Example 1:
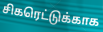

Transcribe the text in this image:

சிகரெட்டுக்காக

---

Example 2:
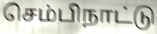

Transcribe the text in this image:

செம்பிநாட்டு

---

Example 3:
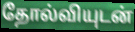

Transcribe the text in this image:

தோல்வியுடன்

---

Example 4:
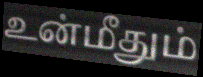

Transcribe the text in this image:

உன்மீதும்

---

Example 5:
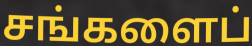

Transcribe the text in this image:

சங்களைப்